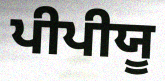
ਪੀਪੀਯੂ